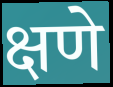
क्षणे